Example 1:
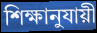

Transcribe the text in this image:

শিক্ষানুযায়ী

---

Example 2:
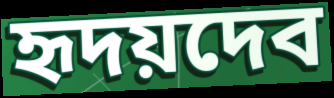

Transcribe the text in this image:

হৃদয়দেব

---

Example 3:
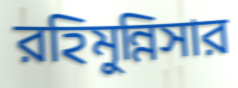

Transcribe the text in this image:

রহিমুন্নিসার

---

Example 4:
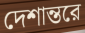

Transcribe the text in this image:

দেশান্তরে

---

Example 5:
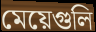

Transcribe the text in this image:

মেয়েগুলি